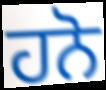
ਹਨੋ